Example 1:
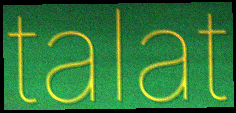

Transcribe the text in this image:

talat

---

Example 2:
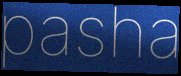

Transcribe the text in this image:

pasha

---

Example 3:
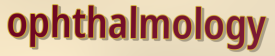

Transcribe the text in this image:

ophthalmology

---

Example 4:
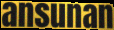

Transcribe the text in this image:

ansunan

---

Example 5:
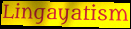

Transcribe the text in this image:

Lingayatism